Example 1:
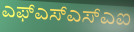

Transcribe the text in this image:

ಎಫ್ಎಸ್ಎಸ್ಎಐ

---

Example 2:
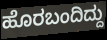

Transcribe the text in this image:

ಹೊರಬಂದಿದ್ದು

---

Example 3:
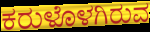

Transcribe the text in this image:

ಕರುಳೊಳಗಿರುವ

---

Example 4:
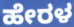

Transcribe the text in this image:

ಹೇರಳ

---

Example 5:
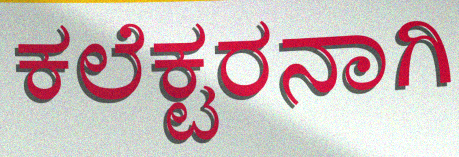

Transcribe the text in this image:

ಕಲೆಕ್ಟರನಾಗಿ